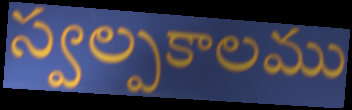
స్వల్పకాలము